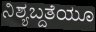
ನಿಶ್ಯಬ್ದತೆಯೂ